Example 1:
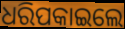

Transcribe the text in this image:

ଧରିପକାଇଲେ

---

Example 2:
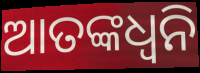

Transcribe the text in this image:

ଆତଙ୍କଧ୍ଵନି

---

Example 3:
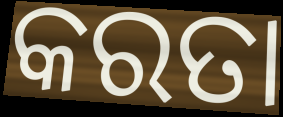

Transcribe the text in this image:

କରତା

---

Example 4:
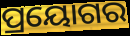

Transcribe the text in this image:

ପ୍ରୟୋଗର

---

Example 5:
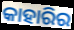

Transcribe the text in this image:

କାହାରିର